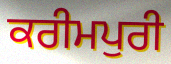
ਕਰੀਮਪੁਰੀ